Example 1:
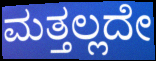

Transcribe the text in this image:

ಮತ್ತಲ್ಲದೇ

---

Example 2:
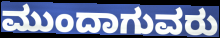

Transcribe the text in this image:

ಮುಂದಾಗುವರು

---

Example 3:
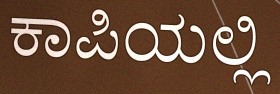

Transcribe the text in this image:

ಕಾಪಿಯಲ್ಲಿ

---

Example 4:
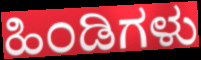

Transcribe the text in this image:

ಹಿಂಡಿಗಳು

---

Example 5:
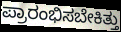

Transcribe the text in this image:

ಪ್ರಾರಂಭಿಸಬೇಕಿತ್ತು